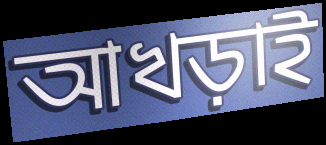
আখড়াই